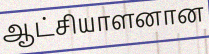
ஆட்சியாளனான